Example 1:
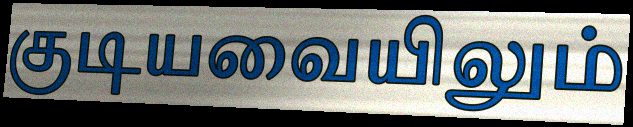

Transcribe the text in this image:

குடியவையிலும்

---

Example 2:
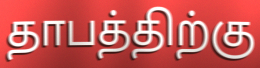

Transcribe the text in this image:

தாபத்திற்கு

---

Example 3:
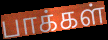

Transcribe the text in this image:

பாக்கள்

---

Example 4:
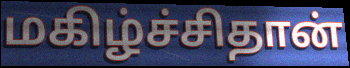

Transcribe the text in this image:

மகிழ்ச்சிதான்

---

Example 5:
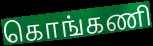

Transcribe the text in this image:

கொங்கணி